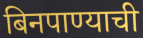
बिनपाण्याची